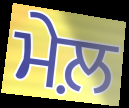
ਮੇਲ਼